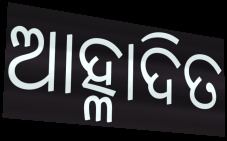
ଆହ୍ଳାଦିତ